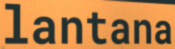
lantana